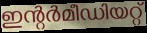
ഇന്റർമീഡിയറ്റ്